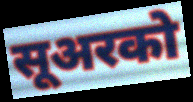
सूअरको